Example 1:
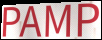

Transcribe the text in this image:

PAMP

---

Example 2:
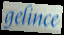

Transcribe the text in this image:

gelince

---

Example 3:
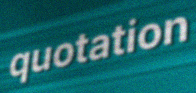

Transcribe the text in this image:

quotation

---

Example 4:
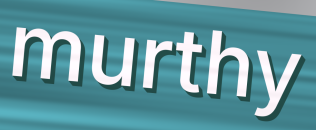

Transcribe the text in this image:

murthy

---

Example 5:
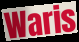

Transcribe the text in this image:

Waris